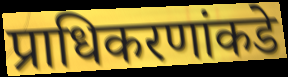
प्राधिकरणांकडे